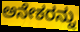
ಅನೇಕರನ್ನು